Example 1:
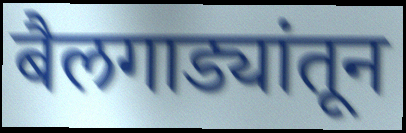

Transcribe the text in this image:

बैलगाड्यांतून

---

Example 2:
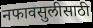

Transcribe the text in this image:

नफावसुलीसाठी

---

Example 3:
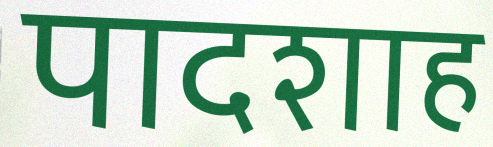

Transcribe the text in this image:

पादशाह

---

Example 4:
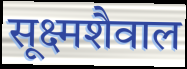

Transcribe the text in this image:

सूक्ष्मशैवाल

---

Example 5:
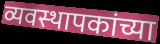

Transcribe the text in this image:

व्यवस्थापकांच्या